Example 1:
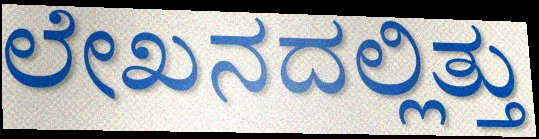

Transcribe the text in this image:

ಲೇಖನದಲ್ಲಿತ್ತು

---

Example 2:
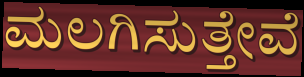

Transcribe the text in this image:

ಮಲಗಿಸುತ್ತೇವೆ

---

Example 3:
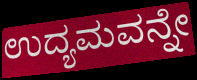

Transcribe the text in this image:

ಉದ್ಯಮವನ್ನೇ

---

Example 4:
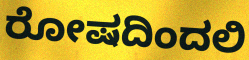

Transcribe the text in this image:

ರೋಷದಿಂದಲಿ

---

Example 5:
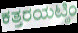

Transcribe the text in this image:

ಕತ್ತರಯಟ್ಠಿಂ